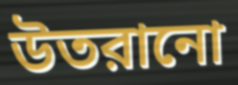
উতরানো